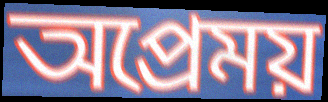
অপ্রেময়